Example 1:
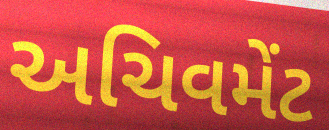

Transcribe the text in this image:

અચિવમેંટ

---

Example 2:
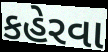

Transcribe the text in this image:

કહેરવા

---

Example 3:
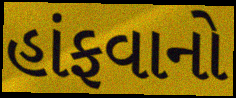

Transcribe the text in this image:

હાંફવાનો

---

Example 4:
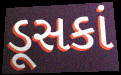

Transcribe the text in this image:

ડૂસકાં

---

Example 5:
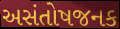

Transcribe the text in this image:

અસંતોષજનક